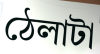
ঠেলাটা